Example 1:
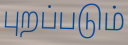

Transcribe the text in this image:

புறப்படும்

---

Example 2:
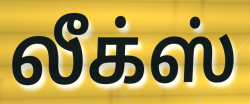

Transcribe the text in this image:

லீக்ஸ்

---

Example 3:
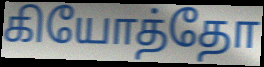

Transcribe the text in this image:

கியோத்தோ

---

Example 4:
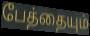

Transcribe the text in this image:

பேத்தையும்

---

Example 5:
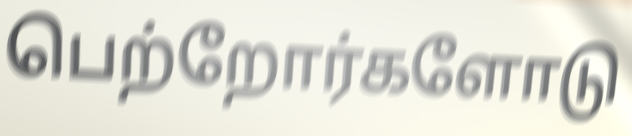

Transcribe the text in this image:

பெற்றோர்களோடு